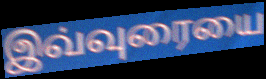
இவ்வுரையை